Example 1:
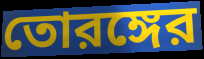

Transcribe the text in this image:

তোরঙ্গের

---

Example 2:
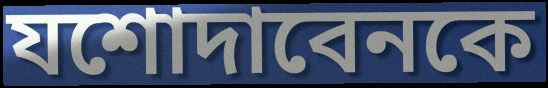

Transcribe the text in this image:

যশোদাবেনকে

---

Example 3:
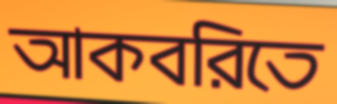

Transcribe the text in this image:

আকবরিতে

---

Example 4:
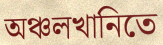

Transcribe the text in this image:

অঞ্চলখানিতে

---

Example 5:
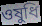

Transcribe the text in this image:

ওষুধি